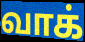
வாக்